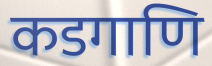
कडगाणि